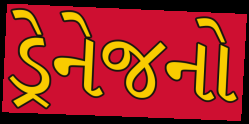
ડ્રેનેજનો